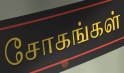
சோகங்கள்